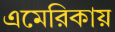
এমেরিকায়